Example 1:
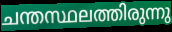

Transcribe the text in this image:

ചന്തസ്ഥലത്തിരുന്നു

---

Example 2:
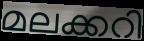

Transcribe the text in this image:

മലക്കറി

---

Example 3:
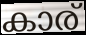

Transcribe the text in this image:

കാര്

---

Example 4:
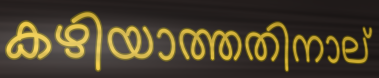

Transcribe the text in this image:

കഴിയാത്തതിനാല്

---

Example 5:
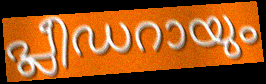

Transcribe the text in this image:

പ്ലീഡറായും